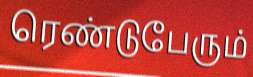
ரெண்டுபேரும்